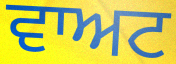
ਵਾਅਟ